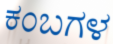
ಕಂಬಗಳ